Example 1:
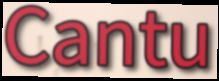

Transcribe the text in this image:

Cantu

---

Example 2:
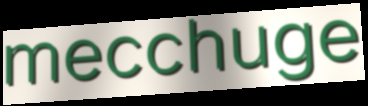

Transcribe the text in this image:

mecchuge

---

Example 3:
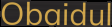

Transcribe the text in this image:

Obaidul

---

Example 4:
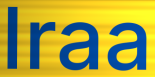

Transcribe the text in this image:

Iraa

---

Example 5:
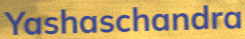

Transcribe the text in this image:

Yashaschandra